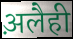
अ़लैही